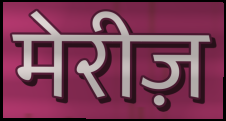
मेरीज़